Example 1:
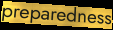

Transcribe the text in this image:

preparedness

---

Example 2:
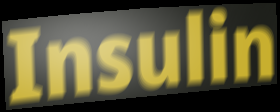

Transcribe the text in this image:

Insulin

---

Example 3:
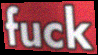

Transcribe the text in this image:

fuck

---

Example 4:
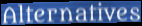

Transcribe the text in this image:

Alternatives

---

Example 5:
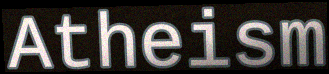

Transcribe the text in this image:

Atheism